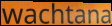
wachtana